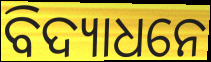
ବିଦ୍ୟାଧନେ